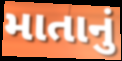
માતાનું